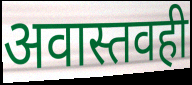
अवास्तवही